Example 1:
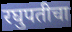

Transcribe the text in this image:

रघुपतीचा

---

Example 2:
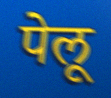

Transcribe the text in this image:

पेलू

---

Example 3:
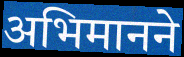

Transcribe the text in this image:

अभिमानने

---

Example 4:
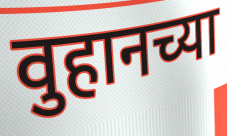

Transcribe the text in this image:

वुहानच्या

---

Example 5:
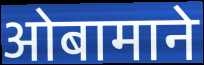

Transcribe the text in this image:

ओबामाने